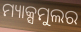
ମ୍ୟାକ୍ସମୁଲର